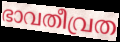
ഭാവതീവ്രത